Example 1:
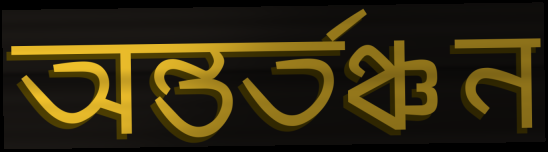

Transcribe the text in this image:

অন্তর্তঞ্চন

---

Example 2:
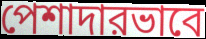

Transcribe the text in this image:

পেশাদারভাবে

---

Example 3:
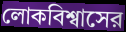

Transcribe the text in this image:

লোকবিশ্বাসের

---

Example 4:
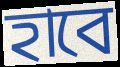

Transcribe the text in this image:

হাবে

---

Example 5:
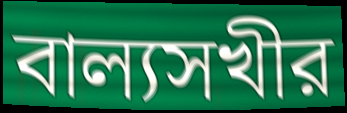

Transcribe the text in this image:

বাল্যসখীর